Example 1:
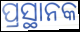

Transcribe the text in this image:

ପ୍ରସ୍ଥାନକ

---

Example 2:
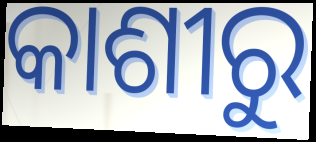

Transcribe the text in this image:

କାଶୀରୁ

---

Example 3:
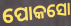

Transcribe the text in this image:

ପୋକସୋ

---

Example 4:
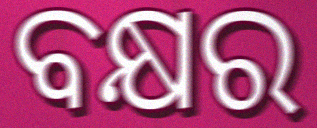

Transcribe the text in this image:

ବକ୍ଷର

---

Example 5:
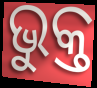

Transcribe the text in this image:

ଭୁକ୍ତ